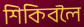
শিকিবলৈ